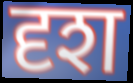
दृश